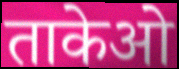
ताकेओ